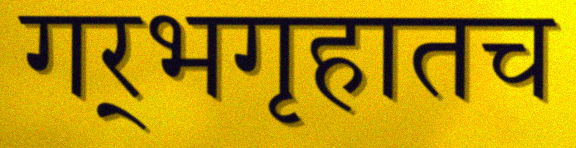
गर्भगृहातच